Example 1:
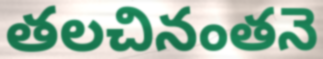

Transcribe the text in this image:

తలచినంతనె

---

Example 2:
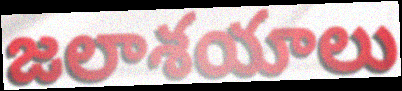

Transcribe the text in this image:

జలాశయాలు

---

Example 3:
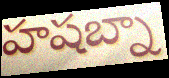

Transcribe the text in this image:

హషబ్నా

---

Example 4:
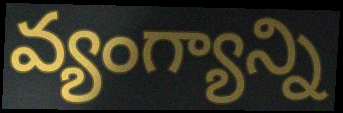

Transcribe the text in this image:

వ్యంగ్యాన్ని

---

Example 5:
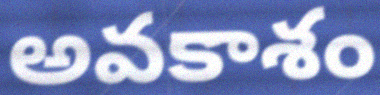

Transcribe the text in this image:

అవకాశం